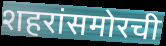
शहरांसमोरची